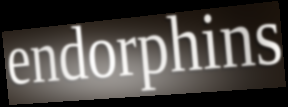
endorphins